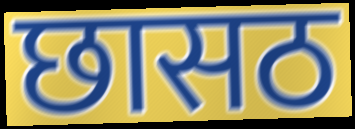
छासठ